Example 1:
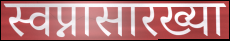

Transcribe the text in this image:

स्वप्नासारख्या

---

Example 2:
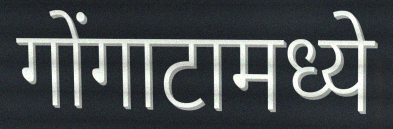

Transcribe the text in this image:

गोंगाटामध्ये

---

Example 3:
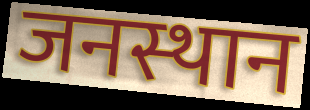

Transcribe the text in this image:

जनस्थान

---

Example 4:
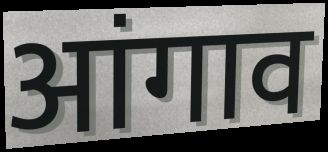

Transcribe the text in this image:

आंगाव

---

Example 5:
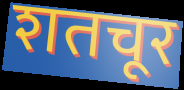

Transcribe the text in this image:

शतचूर